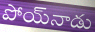
పోయ్‌నాడు